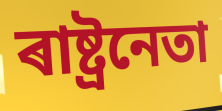
ৰাষ্ট্ৰনেতা